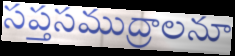
సప్తసముద్రాలనూ